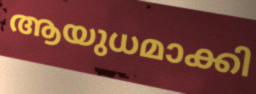
ആയുധമാക്കി